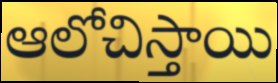
ఆలోచిస్తాయి